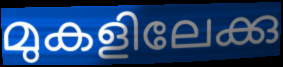
മുകളിലേക്കു